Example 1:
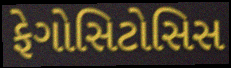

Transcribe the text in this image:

ફેગોસિટોસિસ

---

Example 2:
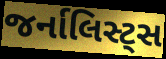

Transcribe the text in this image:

જર્નાલિસ્ટ્સ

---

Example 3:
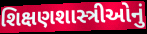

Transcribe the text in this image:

શિક્ષણશાસ્ત્રીઓનું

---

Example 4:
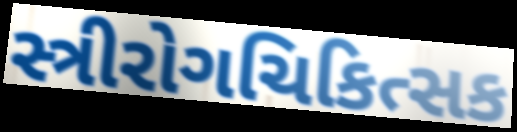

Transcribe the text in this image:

સ્ત્રીરોગચિકિત્સક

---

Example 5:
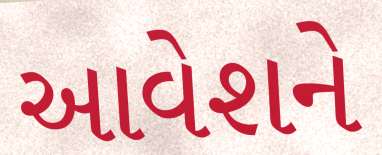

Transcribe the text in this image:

આવેશને